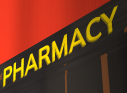
PHARMACY